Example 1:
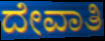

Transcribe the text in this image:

ದೇವಾತಿ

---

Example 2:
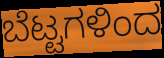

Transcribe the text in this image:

ಬೆಟ್ಟಗಳಿಂದ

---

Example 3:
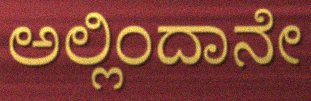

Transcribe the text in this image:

ಅಲ್ಲಿಂದಾನೇ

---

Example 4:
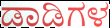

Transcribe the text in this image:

ಡಾಡಿಗಳ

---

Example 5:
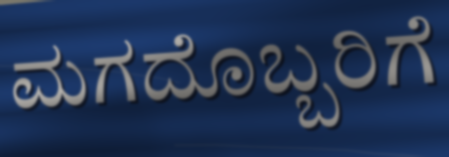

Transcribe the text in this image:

ಮಗದೊಬ್ಬರಿಗೆ